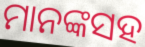
ମାନଙ୍କସହ